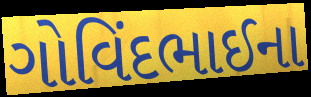
ગોવિંદભાઈના